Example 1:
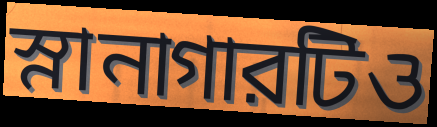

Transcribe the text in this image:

স্নানাগারটিও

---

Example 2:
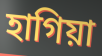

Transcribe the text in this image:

হাগিয়া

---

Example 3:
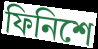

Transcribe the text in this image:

ফিনিশে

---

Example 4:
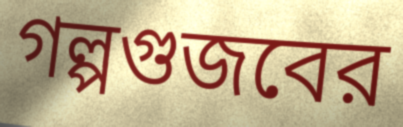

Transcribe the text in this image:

গল্পগুজবের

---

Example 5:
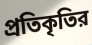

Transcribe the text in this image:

প্রতিকৃতির